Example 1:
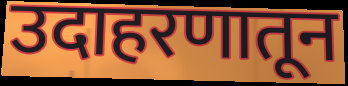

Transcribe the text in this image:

उदाहरणातून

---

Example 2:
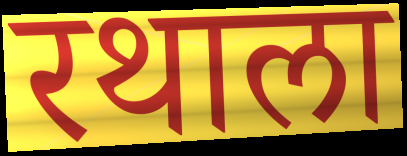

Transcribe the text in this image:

रथाला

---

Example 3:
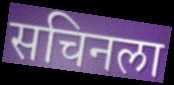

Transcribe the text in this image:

सचिनला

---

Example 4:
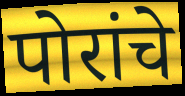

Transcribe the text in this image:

पोरांचे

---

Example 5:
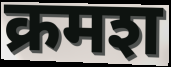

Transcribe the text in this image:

क्रमश